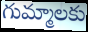
గుమ్మాలకు